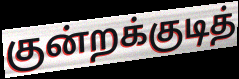
குன்றக்குடித்